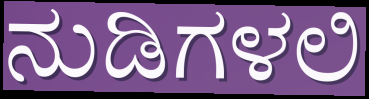
ನುಡಿಗಳಲಿ